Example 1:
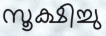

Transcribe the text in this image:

സൂക്ഷിച്ചു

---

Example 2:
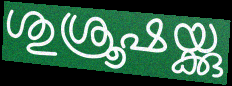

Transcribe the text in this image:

ശുശ്രൂഷയ്ക്കു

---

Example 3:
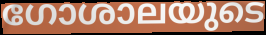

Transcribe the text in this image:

ഗോശാലയുടെ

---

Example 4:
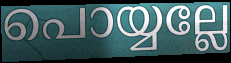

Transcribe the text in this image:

പൊയ്യല്ലേ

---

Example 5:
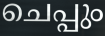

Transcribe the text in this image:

ചെപ്പും